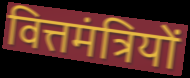
वित्तमंत्रियों